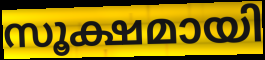
സൂക്ഷമായി